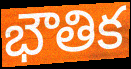
భౌతిక